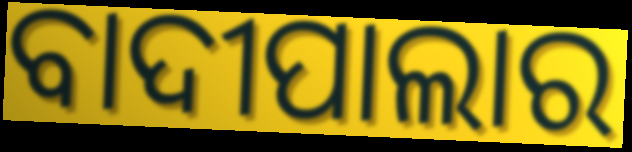
ବାଦୀପାଲାର